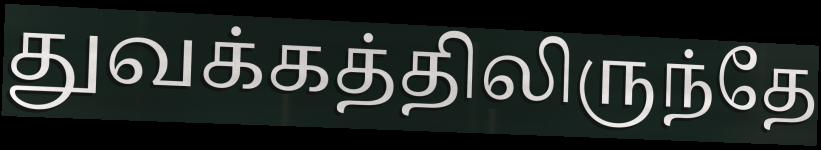
துவக்கத்திலிருந்தே